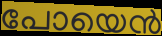
പോയെൻ